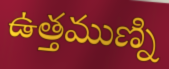
ఉత్తముణ్ని